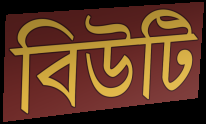
বিউটি